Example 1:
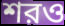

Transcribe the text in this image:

শরও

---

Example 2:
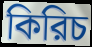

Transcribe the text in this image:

কিরিচ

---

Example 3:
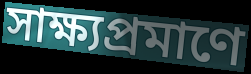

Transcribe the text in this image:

সাক্ষ্যপ্রমাণে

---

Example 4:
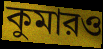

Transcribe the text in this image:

কুমারও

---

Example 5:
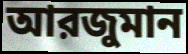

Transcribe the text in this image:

আরজুমান